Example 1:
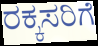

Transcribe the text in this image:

ರಕ್ಕಸರಿಗೆ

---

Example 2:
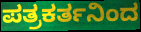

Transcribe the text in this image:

ಪತ್ರಕರ್ತನಿಂದ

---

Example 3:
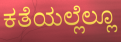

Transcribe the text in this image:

ಕತೆಯಲ್ಲೆಲ್ಲೂ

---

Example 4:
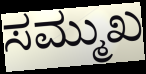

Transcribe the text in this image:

ಸಮ್ಮುಖ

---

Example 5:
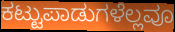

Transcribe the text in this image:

ಕಟ್ಟುಪಾಡುಗಳೆಲ್ಲವೂ